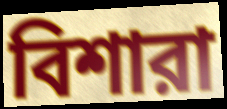
বিশারা